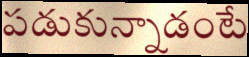
పడుకున్నాడంటే